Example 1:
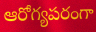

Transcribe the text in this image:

ఆరోగ్యపరంగా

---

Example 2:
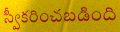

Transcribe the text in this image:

స్వీకరించబడింది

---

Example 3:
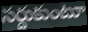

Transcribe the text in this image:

సర్దుకుంటూ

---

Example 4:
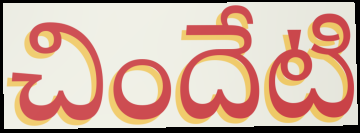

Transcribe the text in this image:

చిందేటి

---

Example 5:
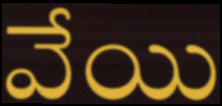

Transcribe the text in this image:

వేయి